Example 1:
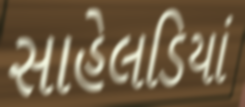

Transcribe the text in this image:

સાહેલડિયાં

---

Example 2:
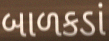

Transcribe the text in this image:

બાળકડાં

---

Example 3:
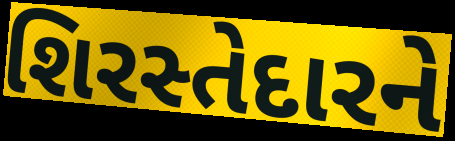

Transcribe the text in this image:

શિરસ્તેદારને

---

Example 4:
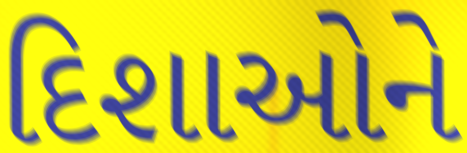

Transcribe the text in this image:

દિશાઓને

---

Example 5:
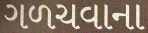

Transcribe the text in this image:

ગળચવાના